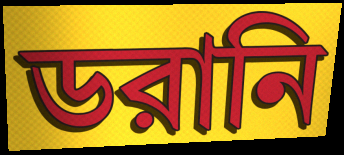
ডরানি